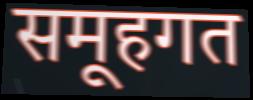
समूहगत